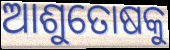
ଆଶୁତୋଷକୁ